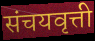
संचयवृत्ती